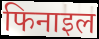
फिनाइल